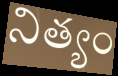
నిత్యం